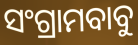
ସଂଗ୍ରାମବାବୁ